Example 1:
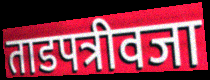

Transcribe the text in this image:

ताडपत्रीवजा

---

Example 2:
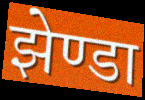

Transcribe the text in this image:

झेण्डा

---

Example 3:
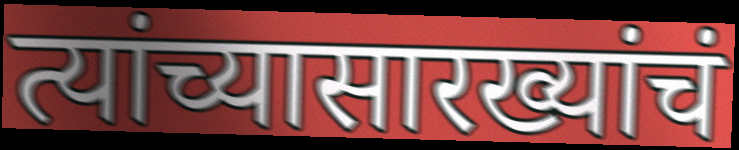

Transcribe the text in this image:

त्यांच्यासारख्यांचं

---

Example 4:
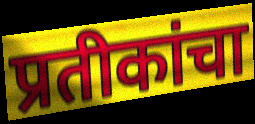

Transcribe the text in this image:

प्रतीकांचा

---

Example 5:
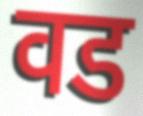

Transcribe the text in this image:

वड